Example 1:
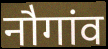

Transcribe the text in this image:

नौगांव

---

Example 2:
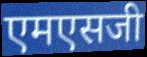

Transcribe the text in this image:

एमएसजी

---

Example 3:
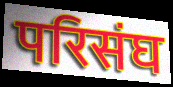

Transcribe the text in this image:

परिसंघ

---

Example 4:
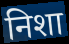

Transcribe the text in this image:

निशा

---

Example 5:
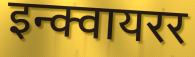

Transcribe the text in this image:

इन्क्वायरर